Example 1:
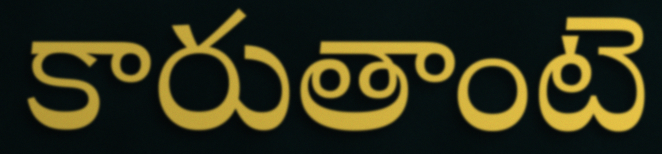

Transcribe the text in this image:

కారుతాంటె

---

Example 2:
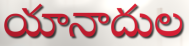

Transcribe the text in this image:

యానాదుల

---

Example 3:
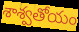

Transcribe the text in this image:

శాశ్వతోయం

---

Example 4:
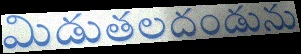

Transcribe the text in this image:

మిడుతలదండును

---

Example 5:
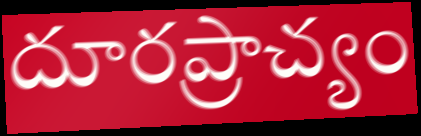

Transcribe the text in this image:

దూరప్రాచ్యం